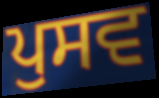
ਪੁਸਵ